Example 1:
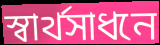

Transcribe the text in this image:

স্বার্থসাধনে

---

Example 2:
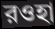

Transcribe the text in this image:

রওহা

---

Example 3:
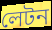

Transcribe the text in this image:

লেটন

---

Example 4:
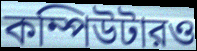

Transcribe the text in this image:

কম্পিউটারও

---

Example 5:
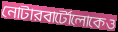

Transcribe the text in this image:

নোটারবার্টোলোকেও